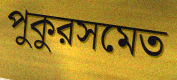
পুকুরসমেত